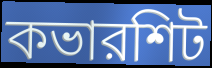
কভারশিট